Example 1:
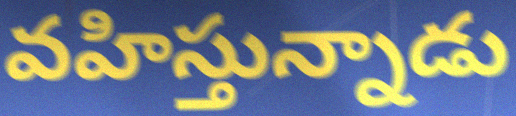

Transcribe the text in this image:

వహిస్తున్నాడు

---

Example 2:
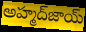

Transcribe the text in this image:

అహ్మద్‌జాయ్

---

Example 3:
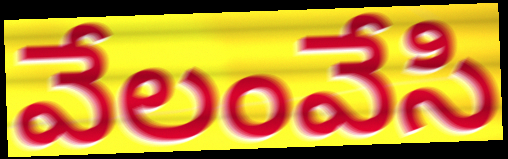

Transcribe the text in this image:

వేలంవేసి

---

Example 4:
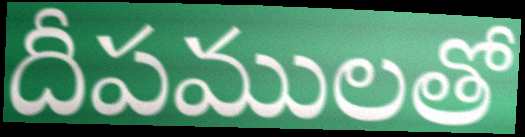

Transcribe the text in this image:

దీపములతో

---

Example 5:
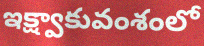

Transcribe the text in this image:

ఇక్ష్వాకువంశంలో